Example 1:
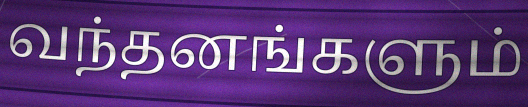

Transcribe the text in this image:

வந்தனங்களும்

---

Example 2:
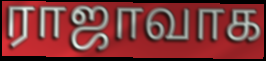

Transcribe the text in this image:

ராஜாவாக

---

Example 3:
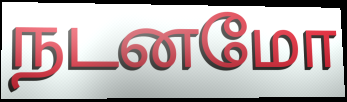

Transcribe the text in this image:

நடனமோ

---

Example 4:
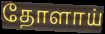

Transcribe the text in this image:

தோளாய்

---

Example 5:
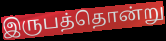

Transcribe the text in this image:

இருபத்தொன்று